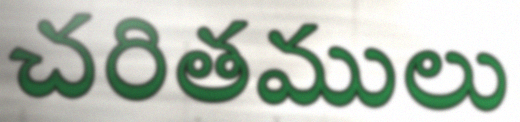
చరితములు